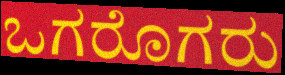
ಒಗರೊಗರು